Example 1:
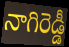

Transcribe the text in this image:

నాగిరెడ్డీ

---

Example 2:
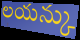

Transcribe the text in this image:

లయన్కు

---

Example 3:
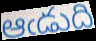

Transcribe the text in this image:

ఆఁడుది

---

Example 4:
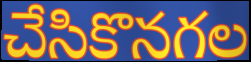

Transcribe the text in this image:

చేసికొనగల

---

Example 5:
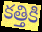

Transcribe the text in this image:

కత్తికి